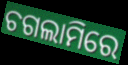
ଚଗଲାମିରେ